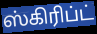
ஸ்கிரிப்ட்